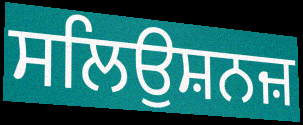
ਸਲਿਉਸ਼ਨਜ਼